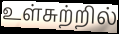
உள்சுற்றில்